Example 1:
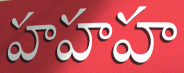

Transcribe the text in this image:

హహహ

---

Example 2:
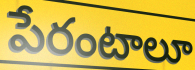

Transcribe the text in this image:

పేరంటాలూ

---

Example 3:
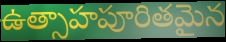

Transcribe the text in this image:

ఉత్సాహపూరితమైన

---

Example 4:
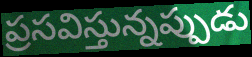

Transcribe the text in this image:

ప్రసవిస్తున్నప్పుడు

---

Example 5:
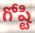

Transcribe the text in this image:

గోష్టి